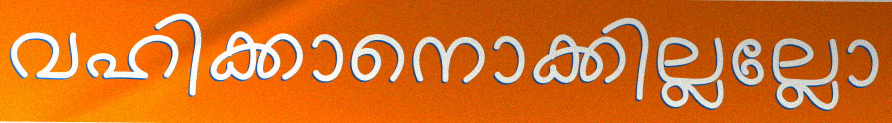
വഹിക്കാനൊക്കില്ലല്ലോ